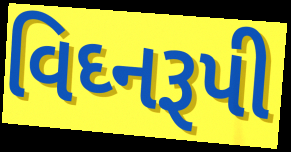
વિઘ્નરૂપી